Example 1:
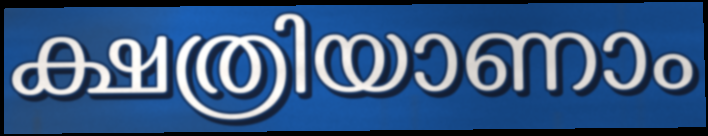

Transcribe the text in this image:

ക്ഷത്രിയാണാം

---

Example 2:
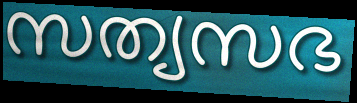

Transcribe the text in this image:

സത്യസഭ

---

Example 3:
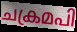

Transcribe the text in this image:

ചക്രമപി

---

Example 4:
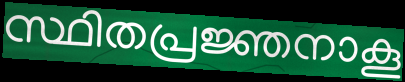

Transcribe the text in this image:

സ്ഥിതപ്രജ്ഞനാകൂ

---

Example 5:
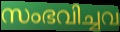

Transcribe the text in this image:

സംഭവിച്ചവ